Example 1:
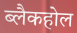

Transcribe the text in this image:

ब्लैकहोल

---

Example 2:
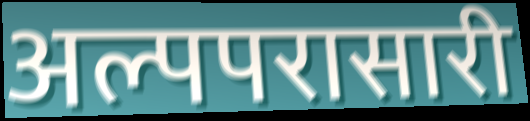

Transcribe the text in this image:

अल्पपरासारी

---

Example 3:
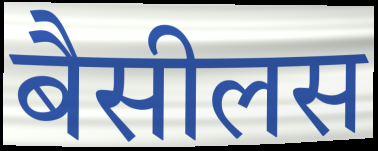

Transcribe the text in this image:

बैसीलस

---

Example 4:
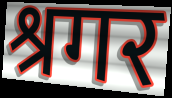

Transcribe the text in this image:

श्रगर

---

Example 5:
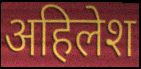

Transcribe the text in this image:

अहिलेश